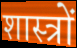
शास्त्रों